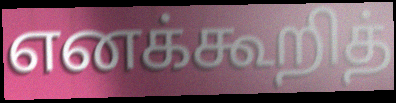
எனக்கூறித்